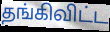
தங்கிவிட்ட